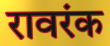
रावरंक